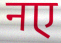
नए